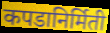
कपडानिर्मिती